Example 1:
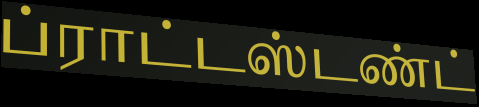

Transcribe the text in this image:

ப்ராட்டஸ்டண்ட்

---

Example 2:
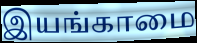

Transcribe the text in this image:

இயங்காமை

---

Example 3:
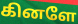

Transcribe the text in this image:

கினளே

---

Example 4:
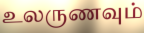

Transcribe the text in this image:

உலருணவும்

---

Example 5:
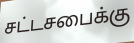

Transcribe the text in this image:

சட்டசபைக்கு